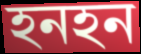
হনহন